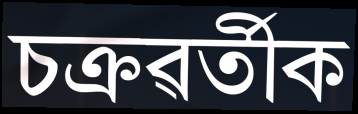
চক্ৰৱৰ্তীক